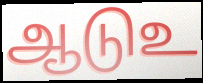
ஆடுஉ